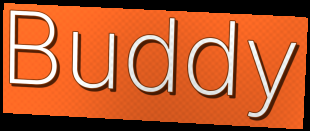
Buddy